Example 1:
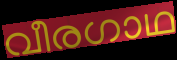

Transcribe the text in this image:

വീരഗാഥ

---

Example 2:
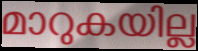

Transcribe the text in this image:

മാറുകയില്ല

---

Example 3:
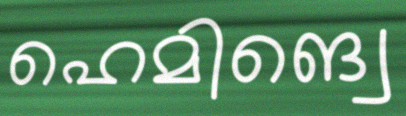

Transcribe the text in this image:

ഹെമിങ്വെ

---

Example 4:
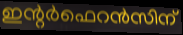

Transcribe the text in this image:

ഇന്റർഫെറൻസിന്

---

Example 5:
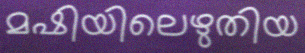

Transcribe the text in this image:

മഷിയിലെഴുതിയ